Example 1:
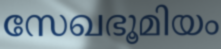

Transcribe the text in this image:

സേഖഭൂമിയം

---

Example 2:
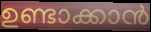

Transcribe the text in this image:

ഉണ്ടാക്കാൻ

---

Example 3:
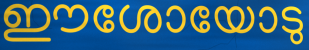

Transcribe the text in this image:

ഈശോയോടു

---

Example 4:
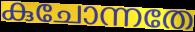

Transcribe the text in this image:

കുചോന്നതേ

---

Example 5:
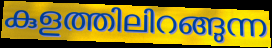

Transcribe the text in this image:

കുളത്തിലിറങ്ങുന്ന